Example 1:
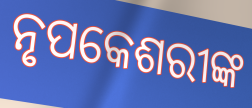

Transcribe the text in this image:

ନୃପକେଶରୀଙ୍କ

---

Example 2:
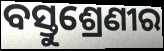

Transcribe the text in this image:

ବସ୍ତୁଶ୍ରେଣୀର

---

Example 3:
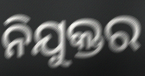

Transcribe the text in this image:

ନିଯୁକ୍ତର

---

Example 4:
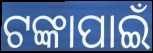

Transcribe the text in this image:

ଟଙ୍କାପାଇଁ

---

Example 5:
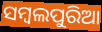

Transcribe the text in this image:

ସମ୍ବଲପୁରିଆ